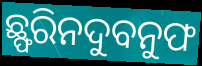
ଛ୍ଫରିନଦୁବନୁଫ